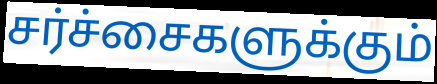
சர்ச்சைகளுக்கும்